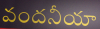
వందనీయా